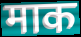
माक